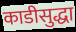
काडीसुद्धा